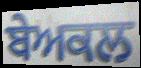
ਬੇਅਕਲ